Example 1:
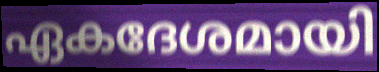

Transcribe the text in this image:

ഏകദേശമായി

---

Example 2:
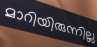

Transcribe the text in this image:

മാറിയിരുന്നില്ല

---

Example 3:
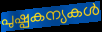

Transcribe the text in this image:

പുഷ്പകന്യകൾ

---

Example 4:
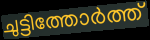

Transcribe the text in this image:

ചുട്ടിത്തോർത്ത്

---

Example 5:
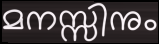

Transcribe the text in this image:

മനസ്സിനും